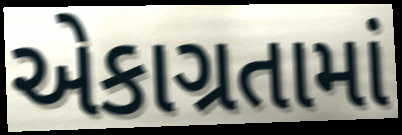
એકાગ્રતામાં